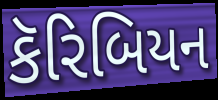
કૅરિબિયન